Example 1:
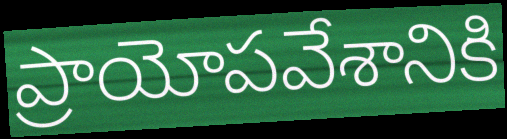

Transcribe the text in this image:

ప్రాయోపవేశానికి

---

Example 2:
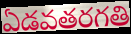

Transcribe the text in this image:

ఏడవతరగతి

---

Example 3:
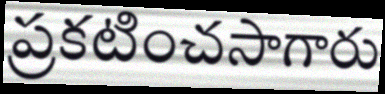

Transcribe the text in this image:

ప్రకటించసాగారు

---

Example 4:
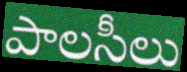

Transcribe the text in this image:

పాలసీలు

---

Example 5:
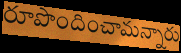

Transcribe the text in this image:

రూపొందించామన్నారు